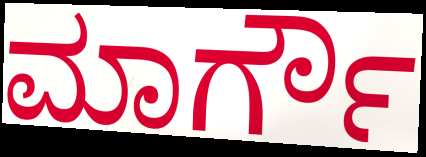
ಮಾರ್ಗೌ